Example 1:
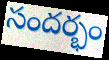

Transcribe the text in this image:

సందర్భం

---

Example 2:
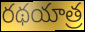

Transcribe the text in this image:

రథయాత్ర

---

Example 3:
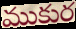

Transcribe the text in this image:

ముకుర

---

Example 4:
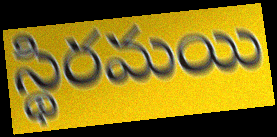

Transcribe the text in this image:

స్థిరమయి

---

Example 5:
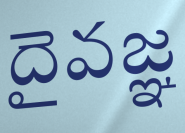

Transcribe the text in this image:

దైవజ్ఞ